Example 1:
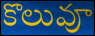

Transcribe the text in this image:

కొలువూ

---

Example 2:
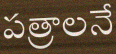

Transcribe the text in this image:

పత్రాలనే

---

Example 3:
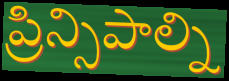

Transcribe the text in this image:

ప్రిన్సిపాల్ని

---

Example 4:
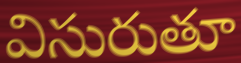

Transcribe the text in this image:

విసురుతూ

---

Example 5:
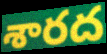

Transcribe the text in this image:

శారద